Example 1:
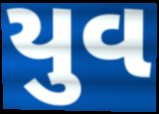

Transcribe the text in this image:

યુવ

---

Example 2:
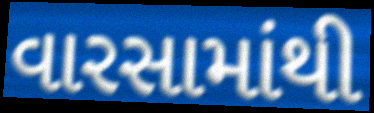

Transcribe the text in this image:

વારસામાંથી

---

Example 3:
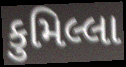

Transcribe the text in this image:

કુમિલ્લા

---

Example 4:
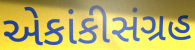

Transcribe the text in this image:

એકાંકીસંગ્રહ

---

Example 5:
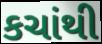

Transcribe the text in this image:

કચાંથી